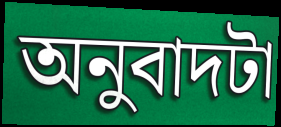
অনুবাদটা